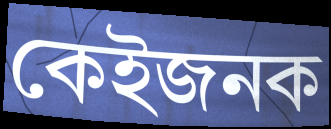
কেইজনক